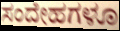
ಸಂದೇಹಗಳೂ